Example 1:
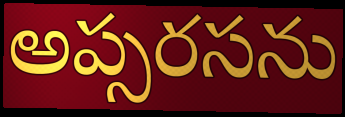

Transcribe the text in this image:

అప్సరసను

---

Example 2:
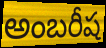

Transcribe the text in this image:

అంబరీష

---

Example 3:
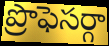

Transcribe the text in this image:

ప్రొఫెసర్గా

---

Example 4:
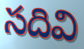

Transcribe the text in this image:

సదివి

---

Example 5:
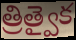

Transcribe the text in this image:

త్రిత్వైక